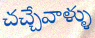
చచ్చేవాళ్ళు